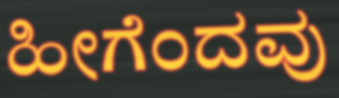
ಹೀಗೆಂದವು